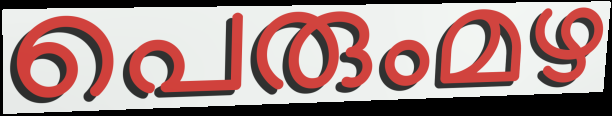
പെരുംമഴ